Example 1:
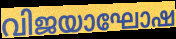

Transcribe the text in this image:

വിജയാഘോഷ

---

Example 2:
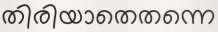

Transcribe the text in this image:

തിരിയാതെതന്നെ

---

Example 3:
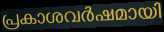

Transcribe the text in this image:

പ്രകാശവർഷമായി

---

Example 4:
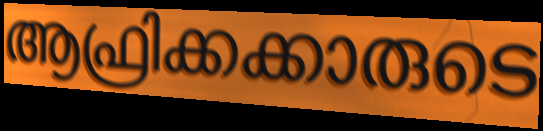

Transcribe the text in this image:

ആഫ്രിക്കക്കാരുടെ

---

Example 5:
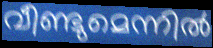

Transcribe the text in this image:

വീണ്ടുമെന്നിൽ